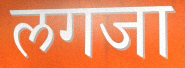
लगजा